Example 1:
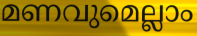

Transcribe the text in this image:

മണവുമെല്ലാം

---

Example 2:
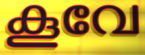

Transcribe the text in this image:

കൂവേ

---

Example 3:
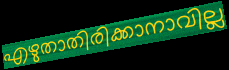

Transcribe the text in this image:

എഴുതാതിരിക്കാനാവില്ല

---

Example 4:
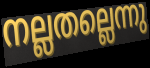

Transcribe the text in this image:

നല്ലതല്ലെന്നു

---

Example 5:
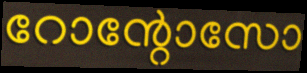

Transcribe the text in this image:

റോന്റോസോ